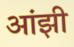
आंझी